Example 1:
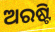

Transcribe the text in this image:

ଅରଷ୍ଟି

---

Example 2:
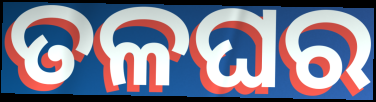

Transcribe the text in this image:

ତଳଘର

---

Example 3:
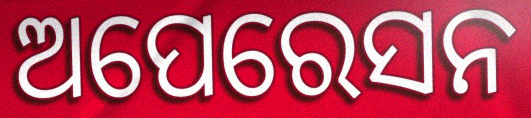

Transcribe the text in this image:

ଅପେରେସନ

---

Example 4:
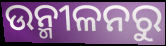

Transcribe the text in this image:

ଉନ୍ମୀଳନରୁ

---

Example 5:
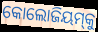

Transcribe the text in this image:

କୋଲୋଜିୟମ୍‍କୁ